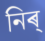
নিৰ্